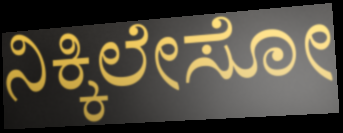
ನಿಕ್ಕಿಲೇಸೋ